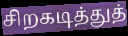
சிறகடித்துத்